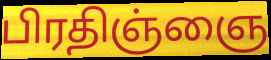
பிரதிஞ்ஞை